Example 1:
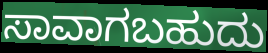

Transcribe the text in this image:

ಸಾವಾಗಬಹುದು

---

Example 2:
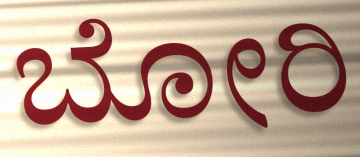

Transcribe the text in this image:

ಬೋರಿ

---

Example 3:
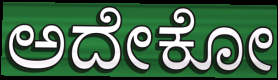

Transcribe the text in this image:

ಅದೇಕೋ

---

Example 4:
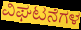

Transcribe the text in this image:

ವಿಘಟನೆಗಳ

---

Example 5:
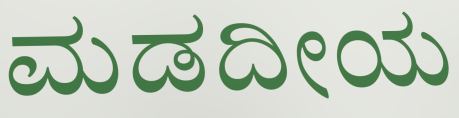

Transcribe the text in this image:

ಮಡದೀಯ